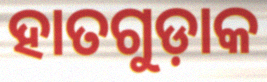
ହାତଗୁଡ଼ାକ